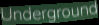
Underground